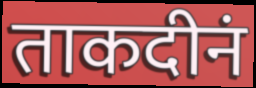
ताकदीनं